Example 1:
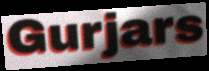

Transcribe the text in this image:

Gurjars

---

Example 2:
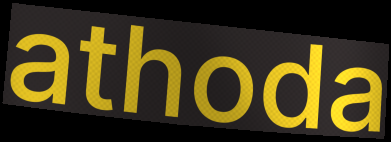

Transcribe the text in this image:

athoda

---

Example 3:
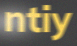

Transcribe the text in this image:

ntiy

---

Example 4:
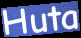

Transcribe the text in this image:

Huta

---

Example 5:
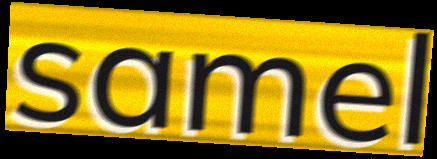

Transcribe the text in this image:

samel